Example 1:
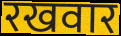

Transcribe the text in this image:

रखवार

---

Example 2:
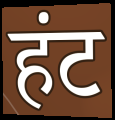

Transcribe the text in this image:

हंट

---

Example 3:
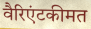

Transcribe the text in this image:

वैरिएंटकीमत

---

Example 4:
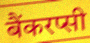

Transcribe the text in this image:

बैंकरप्सी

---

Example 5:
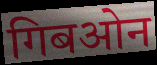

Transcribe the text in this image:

गिबओन